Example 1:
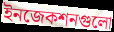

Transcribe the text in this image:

ইনজেকশনগুলো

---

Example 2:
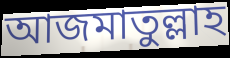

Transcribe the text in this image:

আজমাতুল্লাহ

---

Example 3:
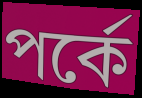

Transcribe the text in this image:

পর্কে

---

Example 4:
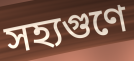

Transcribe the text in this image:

সহ্যগুণে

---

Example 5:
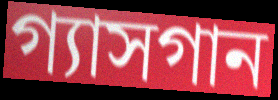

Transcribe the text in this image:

গ্যাসগান